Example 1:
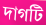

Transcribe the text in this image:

দাগটি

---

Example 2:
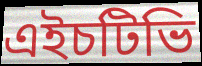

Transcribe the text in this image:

এইচটিভি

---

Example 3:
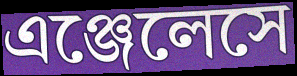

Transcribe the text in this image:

এঞ্জেলেসে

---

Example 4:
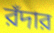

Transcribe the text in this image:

রঁদার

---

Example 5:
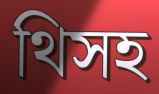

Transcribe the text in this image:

থিসহ